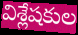
విశ్లేషకుల